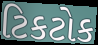
ટિકટોક